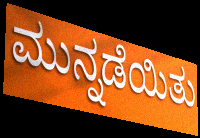
ಮುನ್ನಡೆಯಿತು